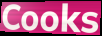
Cooks